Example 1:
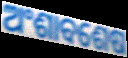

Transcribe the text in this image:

ଅଂଶାବଶେଷ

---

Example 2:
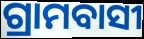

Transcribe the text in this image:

ଗ୍ରାମବାସୀ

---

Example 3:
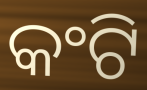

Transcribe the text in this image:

କଂଟି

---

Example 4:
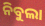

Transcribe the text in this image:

ନିବୁଲା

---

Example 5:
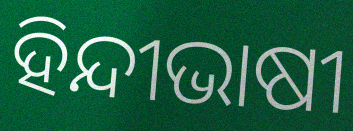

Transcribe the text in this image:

ହିନ୍ଦୀଭାଷୀ